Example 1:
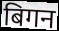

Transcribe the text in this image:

बिगन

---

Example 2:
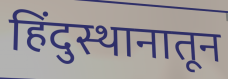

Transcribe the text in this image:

हिंदुस्थानातून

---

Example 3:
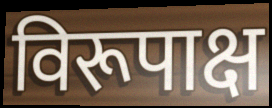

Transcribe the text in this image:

विरूपाक्ष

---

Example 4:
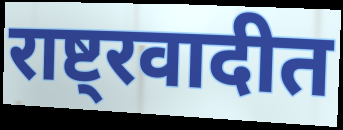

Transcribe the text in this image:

राष्ट्रवादीत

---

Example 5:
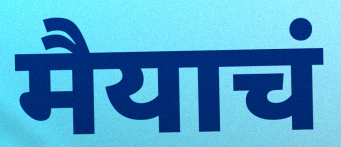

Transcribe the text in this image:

मैयाचं